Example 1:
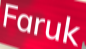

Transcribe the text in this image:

Faruk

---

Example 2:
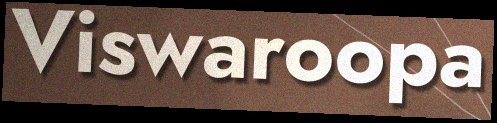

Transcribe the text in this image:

Viswaroopa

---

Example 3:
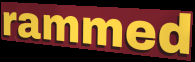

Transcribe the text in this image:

rammed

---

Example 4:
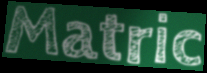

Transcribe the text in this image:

Matric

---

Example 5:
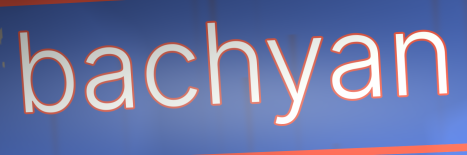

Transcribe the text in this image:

bachyan